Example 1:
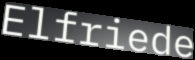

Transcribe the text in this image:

Elfriede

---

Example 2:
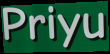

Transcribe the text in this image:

Priyu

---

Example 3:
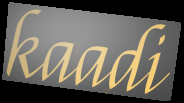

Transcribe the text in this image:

kaadi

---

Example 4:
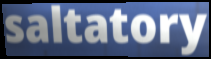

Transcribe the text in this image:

saltatory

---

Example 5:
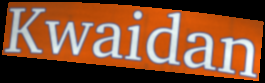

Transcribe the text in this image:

Kwaidan